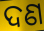
ଦଣ